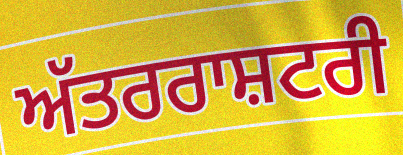
ਅੱਤਰਰਾਸ਼ਟਰੀ